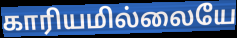
காரியமில்லையே